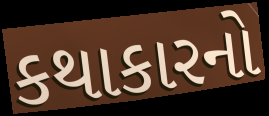
કથાકારનો